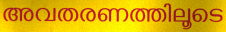
അവതരണത്തിലൂടെ